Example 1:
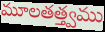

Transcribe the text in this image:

మూలతత్త్వము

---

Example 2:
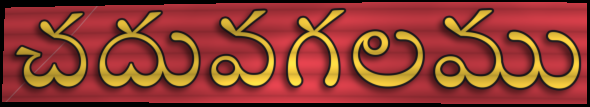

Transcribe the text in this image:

చదువగలము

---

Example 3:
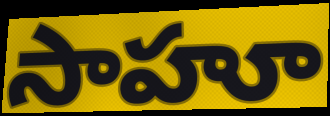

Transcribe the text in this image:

సాహూ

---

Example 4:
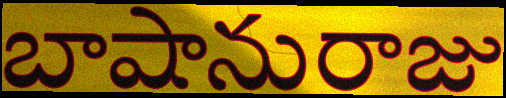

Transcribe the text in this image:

బాషానురాజు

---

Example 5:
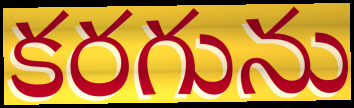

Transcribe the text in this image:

కరగును